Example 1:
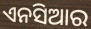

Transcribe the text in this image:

ଏନସିଆର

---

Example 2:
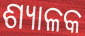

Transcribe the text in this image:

ଶ୍ୟାଳକ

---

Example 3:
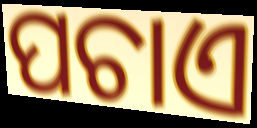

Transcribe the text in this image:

ପଚାଏ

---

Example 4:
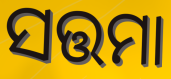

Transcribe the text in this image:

ସତ୍ତମା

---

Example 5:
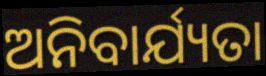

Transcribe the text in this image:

ଅନିବାର୍ଯ୍ୟତା